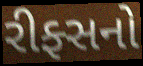
રીફ્સનો